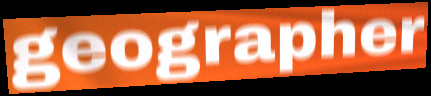
geographer